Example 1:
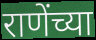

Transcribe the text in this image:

राणेंच्या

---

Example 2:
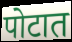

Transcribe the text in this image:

पोटात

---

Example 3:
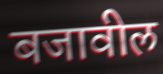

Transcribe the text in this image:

बजावील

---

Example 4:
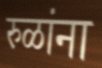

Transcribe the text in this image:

रुळांना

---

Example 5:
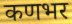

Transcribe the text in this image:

कणभर